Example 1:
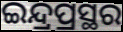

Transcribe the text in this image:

ଇନ୍ଦ୍ରପ୍ରସ୍ଥର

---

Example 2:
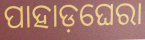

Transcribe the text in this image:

ପାହାଡ଼ଘେରା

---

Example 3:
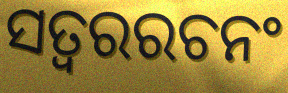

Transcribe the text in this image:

ସତ୍ୱରରଚନଂ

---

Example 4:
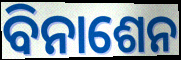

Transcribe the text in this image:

ବିନାଶେନ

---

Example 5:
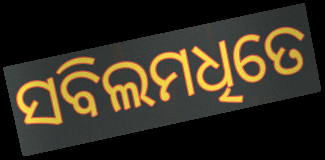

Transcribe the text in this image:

ସବିଲମଧିତେ